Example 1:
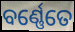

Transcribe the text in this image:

ବର୍ଣ୍ଣେତେ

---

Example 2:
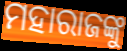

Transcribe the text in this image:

ମହାରାଜଙ୍କୁ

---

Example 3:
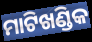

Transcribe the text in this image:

ମାଟିଖଣ୍ଡିକ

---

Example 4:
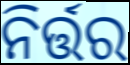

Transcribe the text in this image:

ନିର୍ତ୍ତର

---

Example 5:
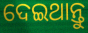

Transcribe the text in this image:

ଦେଇଥାନ୍ତୁ